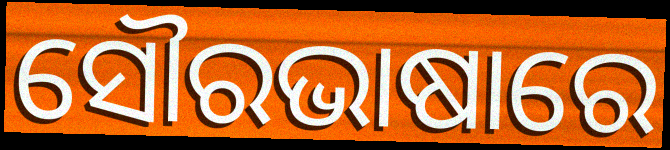
ସୌରଭାଷାରେ